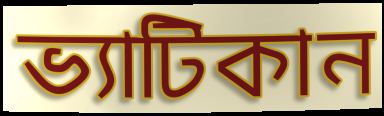
ভ্যাটিকান